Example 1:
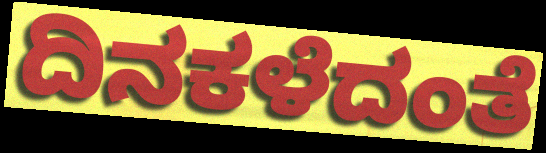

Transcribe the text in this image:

ದಿನಕಳೆದಂತೆ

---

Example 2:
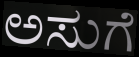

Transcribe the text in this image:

ಅಸುಗೆ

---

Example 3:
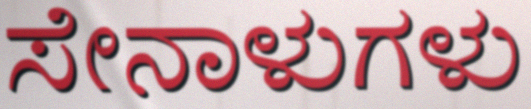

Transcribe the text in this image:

ಸೇನಾಳುಗಳು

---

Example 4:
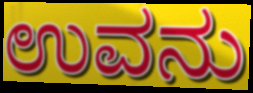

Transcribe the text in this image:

ಉವನು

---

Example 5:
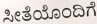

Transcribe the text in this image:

ಸೀತೆಯೊಂದಿಗೆ